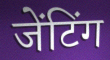
जेंटिंग